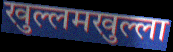
खुल्लमखुल्ला